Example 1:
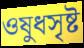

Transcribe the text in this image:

ওষুধসৃষ্ট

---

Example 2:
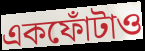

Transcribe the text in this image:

একফোঁটাও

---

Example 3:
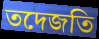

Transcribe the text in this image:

তদেজতি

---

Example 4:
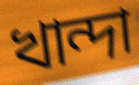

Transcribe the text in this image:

খান্দা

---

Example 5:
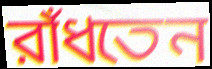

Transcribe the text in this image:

রাঁধতেন